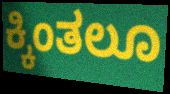
ಕ್ಕಿಂತಲೂ